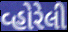
વ્હોરેલી